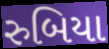
રુબિયા